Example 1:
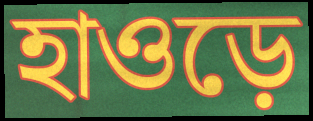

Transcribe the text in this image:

হাওড়ে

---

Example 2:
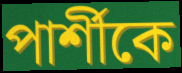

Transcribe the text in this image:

পার্শীকে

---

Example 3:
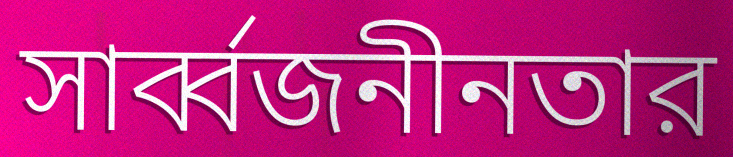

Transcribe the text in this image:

সার্ব্বজনীনতার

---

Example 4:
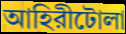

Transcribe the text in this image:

আহিরীটোলা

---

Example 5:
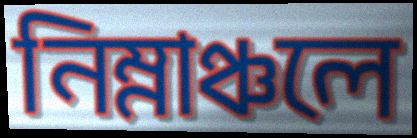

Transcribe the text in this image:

নিম্নাঞ্চলে